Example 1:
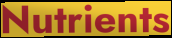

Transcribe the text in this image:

Nutrients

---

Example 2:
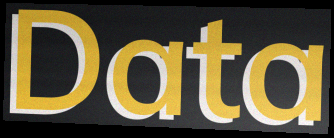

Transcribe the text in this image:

Data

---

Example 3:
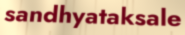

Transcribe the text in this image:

sandhyataksale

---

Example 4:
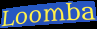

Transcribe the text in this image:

Loomba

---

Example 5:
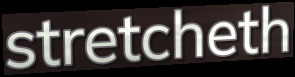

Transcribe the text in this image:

stretcheth